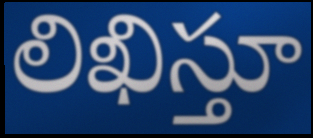
లిఖిస్తూ